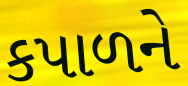
કપાળને